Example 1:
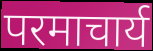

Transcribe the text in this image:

परमाचार्य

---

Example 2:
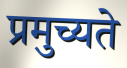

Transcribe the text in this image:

प्रमुच्यते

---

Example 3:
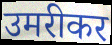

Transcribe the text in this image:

उमरीकर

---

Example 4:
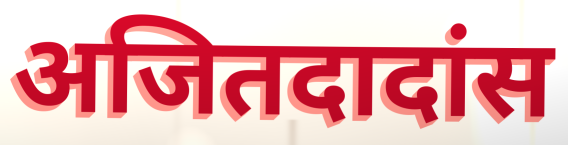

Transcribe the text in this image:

अजितदादांस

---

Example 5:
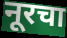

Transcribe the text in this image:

नूरचा